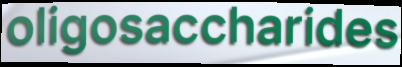
oligosaccharides